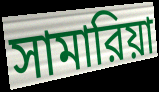
সামারিয়া